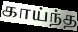
காய்ந்த